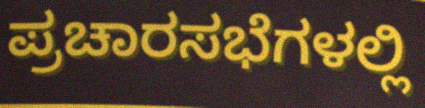
ಪ್ರಚಾರಸಭೆಗಳಲ್ಲಿ